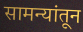
सामन्यांतून